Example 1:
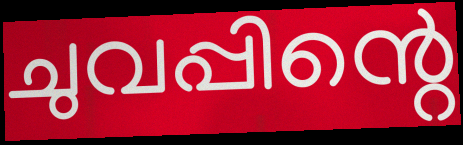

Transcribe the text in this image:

ചുവപ്പിന്റെ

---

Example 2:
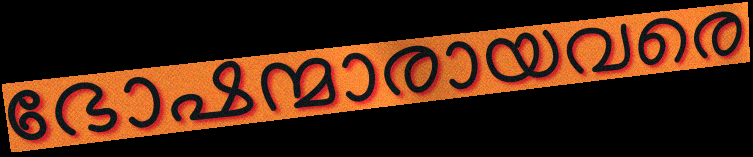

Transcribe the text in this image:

ഭോഷന്മാരായവരെ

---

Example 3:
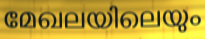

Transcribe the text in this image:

മേഖലയിലെയും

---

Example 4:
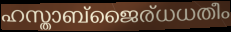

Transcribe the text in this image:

ഹസ്താബ്ജൈര്ധധതീം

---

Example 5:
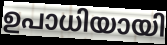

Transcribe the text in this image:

ഉപാധിയായി